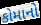
કોમાનો